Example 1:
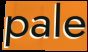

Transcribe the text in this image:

pale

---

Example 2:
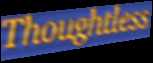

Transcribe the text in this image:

Thoughtless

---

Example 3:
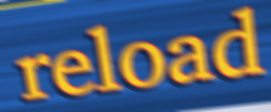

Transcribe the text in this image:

reload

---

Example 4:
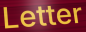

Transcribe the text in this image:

Letter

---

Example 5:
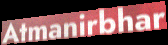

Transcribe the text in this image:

Atmanirbhar